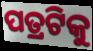
ପତ୍ରଟିକୁ